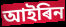
আইৰিন